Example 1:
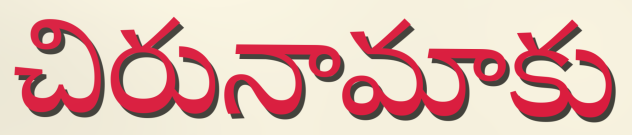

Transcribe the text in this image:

చిరునామాకు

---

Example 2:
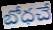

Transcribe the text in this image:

బోధచే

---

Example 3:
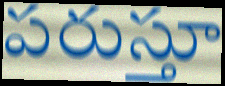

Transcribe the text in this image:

పరుస్తూ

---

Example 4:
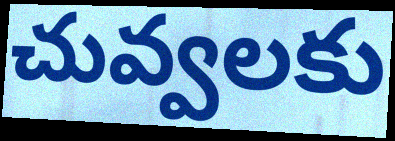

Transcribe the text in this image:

చువ్వలకు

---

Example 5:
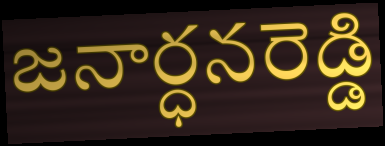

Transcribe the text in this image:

జనార్ధనరెడ్డి